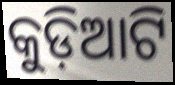
କୁଡ଼ିଆଟି